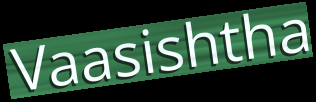
Vaasishtha